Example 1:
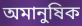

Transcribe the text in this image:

অমানুষিক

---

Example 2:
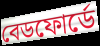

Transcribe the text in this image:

বেডফোর্ডে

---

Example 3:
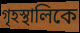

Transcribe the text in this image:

গৃহস্থালিকে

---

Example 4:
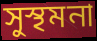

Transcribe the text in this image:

সুস্থমনা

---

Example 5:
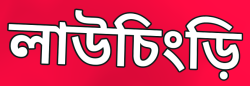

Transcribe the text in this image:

লাউচিংড়ি